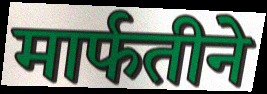
मार्फतीने